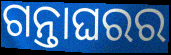
ଗନ୍ତାଘରର